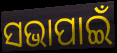
ସଭାପାଇଁ